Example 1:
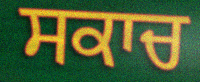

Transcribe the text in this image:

ਸਕਾਚ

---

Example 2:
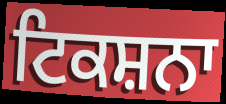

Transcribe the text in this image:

ਟਿਕਸ਼ਨਾ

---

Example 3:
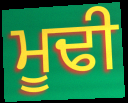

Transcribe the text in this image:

ਮੂਢੀ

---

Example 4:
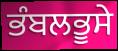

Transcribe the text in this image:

ਭੰਬਲਭੂਸੇ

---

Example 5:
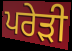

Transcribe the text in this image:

ਪਰੇੜੀ